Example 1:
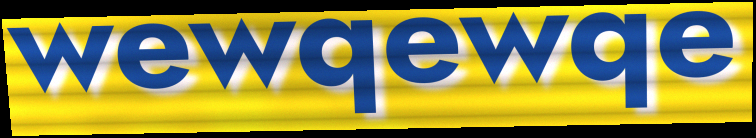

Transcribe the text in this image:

wewqewqe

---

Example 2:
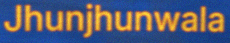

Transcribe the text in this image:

Jhunjhunwala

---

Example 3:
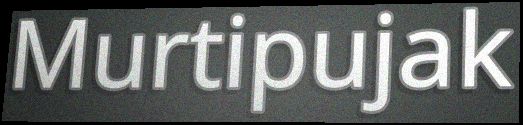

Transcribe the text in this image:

Murtipujak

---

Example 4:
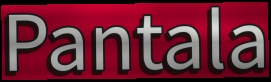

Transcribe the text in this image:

Pantala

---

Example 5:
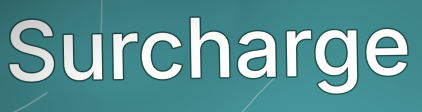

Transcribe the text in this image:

Surcharge